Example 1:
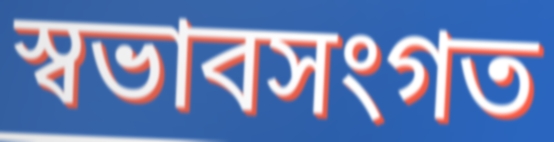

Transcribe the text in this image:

স্বভাবসংগত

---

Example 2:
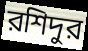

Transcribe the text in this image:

রশিদুর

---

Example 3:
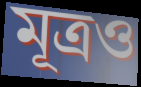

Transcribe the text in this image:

মূত্রও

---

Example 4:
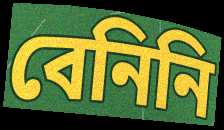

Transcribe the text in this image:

বেনিনি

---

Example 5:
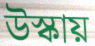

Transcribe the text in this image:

উস্কায়